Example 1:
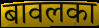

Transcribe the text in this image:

बावलका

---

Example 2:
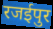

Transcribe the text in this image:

रजईपुर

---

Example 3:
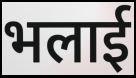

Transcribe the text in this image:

भलाई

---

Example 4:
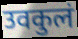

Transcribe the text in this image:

उवकुलं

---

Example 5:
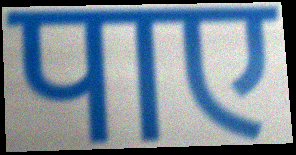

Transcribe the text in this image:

पाए